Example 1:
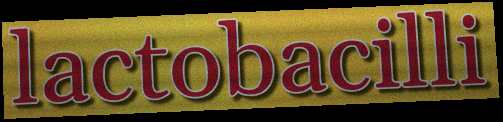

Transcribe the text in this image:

lactobacilli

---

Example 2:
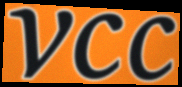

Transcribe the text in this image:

vcc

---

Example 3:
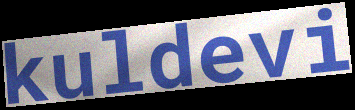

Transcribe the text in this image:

kuldevi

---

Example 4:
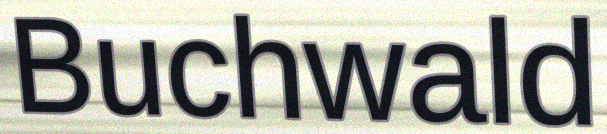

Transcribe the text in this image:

Buchwald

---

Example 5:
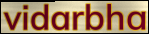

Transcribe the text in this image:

vidarbha